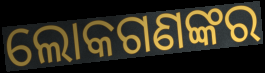
ଲୋକଗଣଙ୍କର